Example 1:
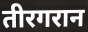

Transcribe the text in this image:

तीरगरान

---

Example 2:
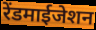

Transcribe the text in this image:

रेंडमाईजेशन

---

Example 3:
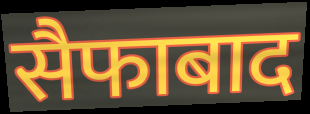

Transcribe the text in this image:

सैफाबाद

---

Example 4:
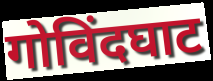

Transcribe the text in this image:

गोविंदघाट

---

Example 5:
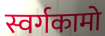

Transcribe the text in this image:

स्वर्गकामो